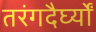
तरंगदैर्घ्यों